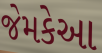
જેમકેઆ